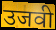
उजवी